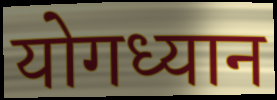
योगध्यान